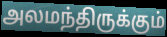
அலமந்திருக்கும்